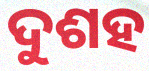
ଦୁଶହ